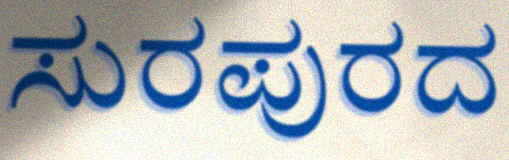
ಸುರಪುರದ